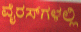
ವೈರಸ್‌ಗಳಲ್ಲಿ